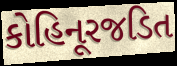
કોહિનૂરજડિત